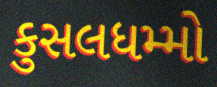
કુસલધમ્મો